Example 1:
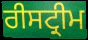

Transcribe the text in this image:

ਰੀਸਟ੍ਰੀਮ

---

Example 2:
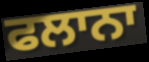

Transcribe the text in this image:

ਫਲਾਨਾ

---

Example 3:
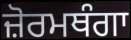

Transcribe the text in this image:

ਜ਼ੋਰਮਥੰਗਾ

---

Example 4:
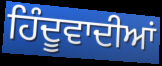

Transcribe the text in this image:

ਹਿੰਦੂਵਾਦੀਆਂ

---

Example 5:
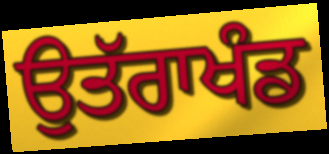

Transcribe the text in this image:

ਉਤੱਰਾਖੰਡ